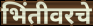
भिंतीवरचे